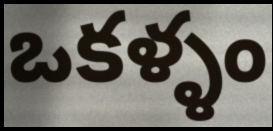
ఒకళ్ళం